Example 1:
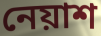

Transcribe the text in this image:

নেয়াশ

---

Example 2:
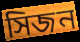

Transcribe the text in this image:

সিজন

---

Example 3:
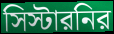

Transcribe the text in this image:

সিস্টারনির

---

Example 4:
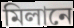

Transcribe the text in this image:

মিলানে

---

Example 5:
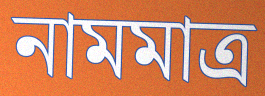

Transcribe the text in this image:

নামমাত্র